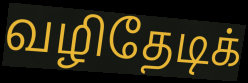
வழிதேடிக்